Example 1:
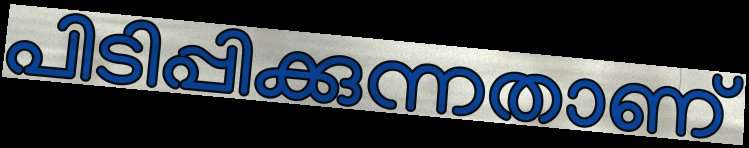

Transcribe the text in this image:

പിടിപ്പിക്കുന്നതാണ്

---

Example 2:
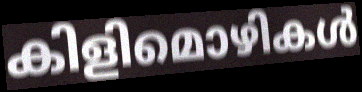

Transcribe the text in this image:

കിളിമൊഴികൾ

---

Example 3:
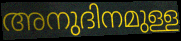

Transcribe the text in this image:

അനുദിനമുള്ള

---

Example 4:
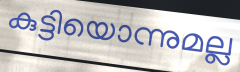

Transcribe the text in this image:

കുട്ടിയൊന്നുമല്ല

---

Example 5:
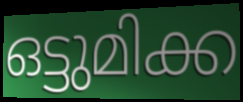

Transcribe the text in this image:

ഒട്ടുമിക്ക